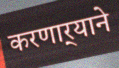
करणार्याने